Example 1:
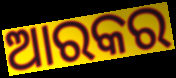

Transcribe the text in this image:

ଆରକର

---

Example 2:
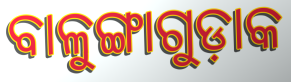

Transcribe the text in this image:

ବାଳୁଙ୍ଗାଗୁଡ଼ାକ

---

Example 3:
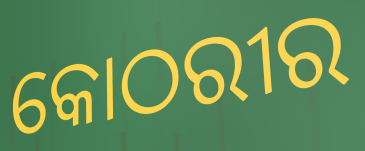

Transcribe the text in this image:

କୋଠରୀର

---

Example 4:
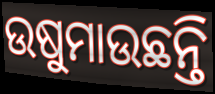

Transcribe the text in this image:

ଉଷୁମାଉଛନ୍ତି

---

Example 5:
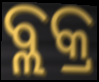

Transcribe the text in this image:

ବ୍ଲକ୍ର